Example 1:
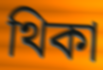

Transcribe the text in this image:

থিকা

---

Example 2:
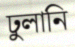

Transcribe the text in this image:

ঢুলানি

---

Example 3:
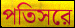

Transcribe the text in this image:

পতিসরে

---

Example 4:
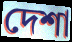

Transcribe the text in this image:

দেশা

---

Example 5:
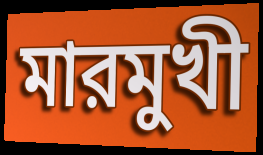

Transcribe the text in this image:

মারমুখী